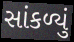
સાંકળ્યું